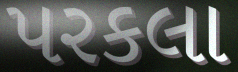
પરકલા